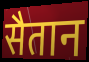
सैतान